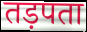
तड़पता